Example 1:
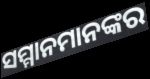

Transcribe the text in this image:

ସମ୍ମାନମାନଙ୍କର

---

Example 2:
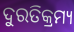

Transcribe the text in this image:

ଦୁରତିକ୍ରମ୍ୟ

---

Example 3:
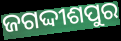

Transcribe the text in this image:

ଜଗଦ୍ଦୀଶପୁର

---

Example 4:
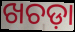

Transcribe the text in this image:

ଖଚଡ଼ା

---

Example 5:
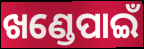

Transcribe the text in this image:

ଖଣ୍ଡେପାଇଁ